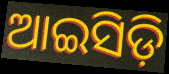
ଆଇସିଡ଼ି